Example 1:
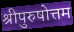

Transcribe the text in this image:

श्रीपुरुषोत्तम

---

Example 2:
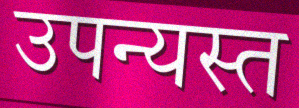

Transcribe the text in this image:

उपन्यस्त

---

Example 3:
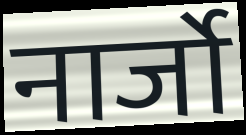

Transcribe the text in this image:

नार्जो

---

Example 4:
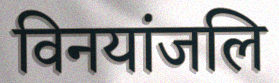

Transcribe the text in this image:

विनयांजलि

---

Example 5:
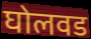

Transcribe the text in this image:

घोलवड